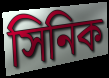
সিনিক